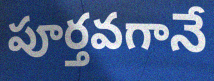
పూర్తవగానే